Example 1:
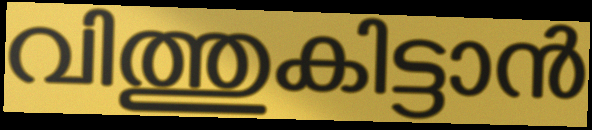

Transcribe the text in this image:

വിത്തുകിട്ടാൻ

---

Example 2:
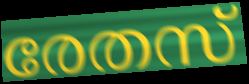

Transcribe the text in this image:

രേതസ്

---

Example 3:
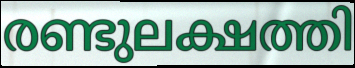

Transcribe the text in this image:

രണ്ടുലക്ഷത്തി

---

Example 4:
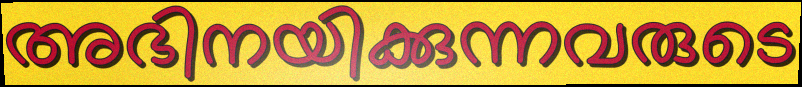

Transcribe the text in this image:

അഭിനയിക്കുന്നവരുടെ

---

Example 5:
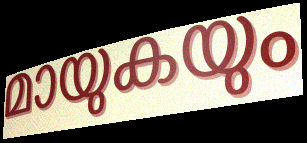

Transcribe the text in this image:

മായുകയും